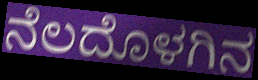
ನೆಲದೊಳಗಿನ